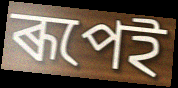
ৰূপেই